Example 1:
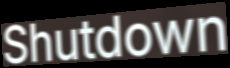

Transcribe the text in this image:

Shutdown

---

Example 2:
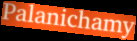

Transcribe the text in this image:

Palanichamy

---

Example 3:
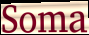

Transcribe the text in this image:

Soma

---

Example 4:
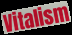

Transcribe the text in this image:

Vitalism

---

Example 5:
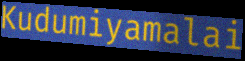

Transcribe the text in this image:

Kudumiyamalai